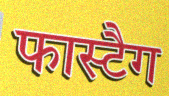
फास्‍टैग